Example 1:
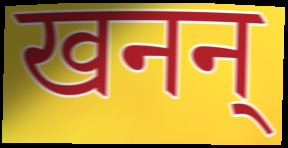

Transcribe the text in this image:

खनन्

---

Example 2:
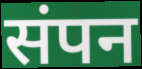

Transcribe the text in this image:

संपन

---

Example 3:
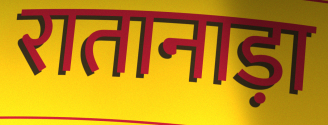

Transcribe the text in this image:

रातानाड़ा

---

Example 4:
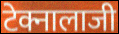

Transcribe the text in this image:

टेक्नालाजी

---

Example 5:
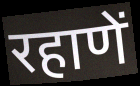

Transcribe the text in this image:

रहाणें